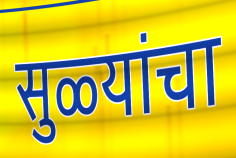
सुळ्यांचा